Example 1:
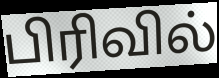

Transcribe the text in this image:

பிரிவில்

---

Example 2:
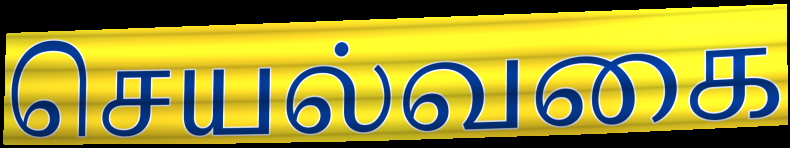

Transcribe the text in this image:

செயல்வகை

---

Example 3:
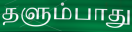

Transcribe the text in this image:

தளும்பாது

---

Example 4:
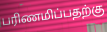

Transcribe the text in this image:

பரிணமிப்பதற்கு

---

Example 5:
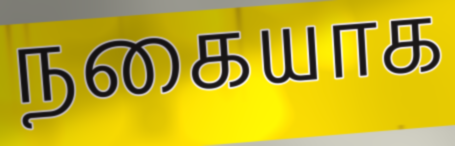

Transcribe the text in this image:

நகையாக